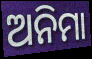
ଅନିମା